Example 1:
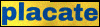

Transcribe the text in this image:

placate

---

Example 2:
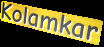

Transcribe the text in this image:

Kolamkar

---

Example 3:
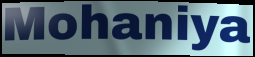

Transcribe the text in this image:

Mohaniya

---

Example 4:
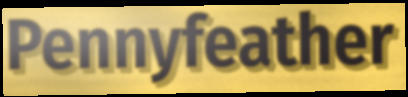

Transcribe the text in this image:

Pennyfeather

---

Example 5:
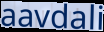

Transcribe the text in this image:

aavdali